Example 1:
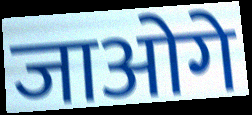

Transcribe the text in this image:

जाओगे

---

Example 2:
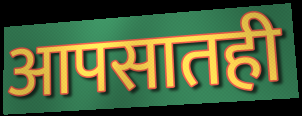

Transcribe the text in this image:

आपसातही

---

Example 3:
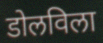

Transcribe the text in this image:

डोलविला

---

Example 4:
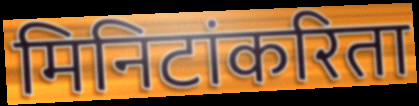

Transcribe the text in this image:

मिनिटांकरिता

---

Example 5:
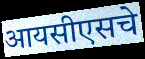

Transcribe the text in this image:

आयसीएसचे